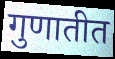
गुणातीत